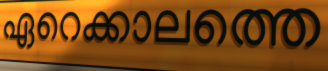
ഏറെക്കാലത്തെ